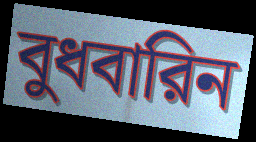
বুধবারিন